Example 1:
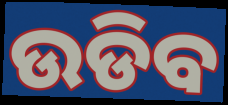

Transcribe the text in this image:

ଉଡିବ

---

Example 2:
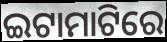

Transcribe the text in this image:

ଇଟାମାଟିରେ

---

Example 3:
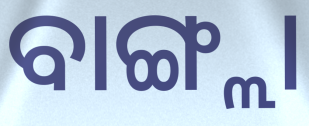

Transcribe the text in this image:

ବାଙ୍ଗ୍ଲା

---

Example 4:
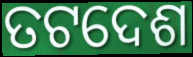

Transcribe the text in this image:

ତଟଦେଶ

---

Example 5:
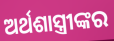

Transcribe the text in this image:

ଅର୍ଥଶାସ୍ତ୍ରୀଙ୍କର